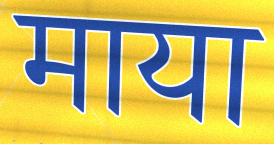
माया